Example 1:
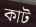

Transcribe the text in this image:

কাট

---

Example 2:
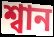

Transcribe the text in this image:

শ্বান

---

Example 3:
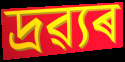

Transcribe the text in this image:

দ্ৰৱ্যৰ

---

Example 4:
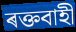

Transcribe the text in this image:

ৰক্তবাহী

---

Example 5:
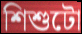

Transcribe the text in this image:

শিশুটো